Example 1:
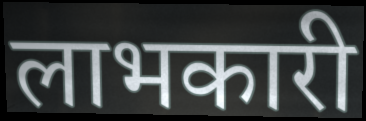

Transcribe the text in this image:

लाभकारी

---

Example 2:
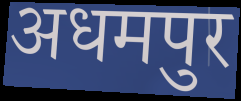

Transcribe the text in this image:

अधमपुर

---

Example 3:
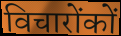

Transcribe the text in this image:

विचारोंकों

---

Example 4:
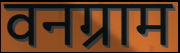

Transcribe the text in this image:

वनग्राम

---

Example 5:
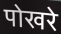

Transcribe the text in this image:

पोखरे